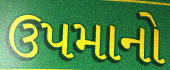
ઉપમાનો